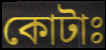
কোটাঃ